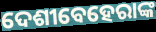
ଦେଶୀବେହେରାଙ୍କ